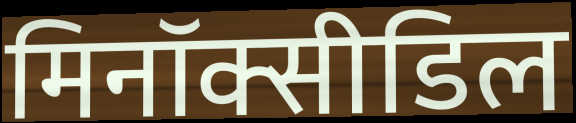
मिनॉक्सीडिल